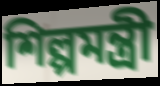
শিল্পমন্ত্রী